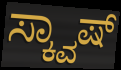
ಸ್ಕ್ವಾಷ್